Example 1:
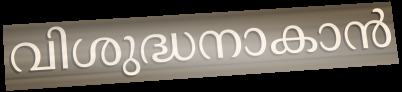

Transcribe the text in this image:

വിശുദ്ധനാകാൻ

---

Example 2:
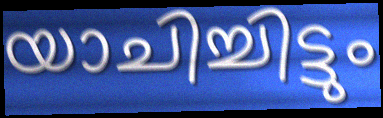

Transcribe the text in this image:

യാചിച്ചിട്ടും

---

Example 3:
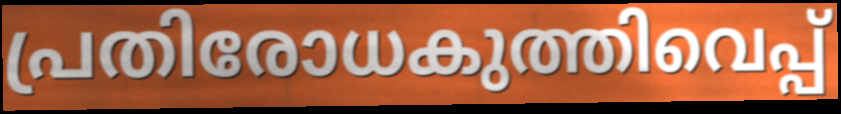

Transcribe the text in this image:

പ്രതിരോധകുത്തിവെപ്പ്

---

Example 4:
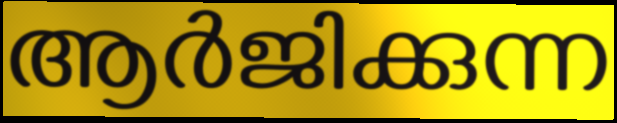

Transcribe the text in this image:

ആർജിക്കുന്ന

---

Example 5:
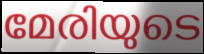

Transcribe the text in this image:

മേരിയുടെ